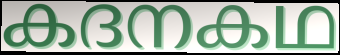
കദനകഥ